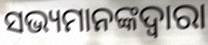
ସଭ୍ୟମାନଙ୍କଦ୍ୱାରା